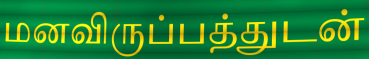
மனவிருப்பத்துடன்